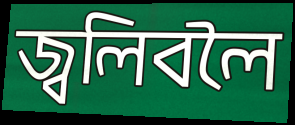
জ্বলিবলৈ